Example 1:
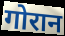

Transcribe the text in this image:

गोरान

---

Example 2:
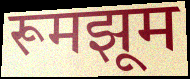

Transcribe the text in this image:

रूमझूम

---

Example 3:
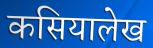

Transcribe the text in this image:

कसियालेख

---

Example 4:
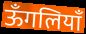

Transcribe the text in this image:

ऊँगलियाँ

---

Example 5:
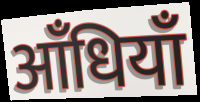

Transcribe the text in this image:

आँधियाँ